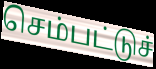
செம்பட்டுச்